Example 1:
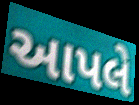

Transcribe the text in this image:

આપલે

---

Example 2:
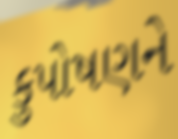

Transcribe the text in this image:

કુપોષણને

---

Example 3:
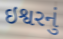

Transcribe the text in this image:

ઇશ્વરનું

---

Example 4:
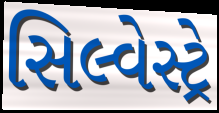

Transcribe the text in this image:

સિલ્વેસ્ટ્રે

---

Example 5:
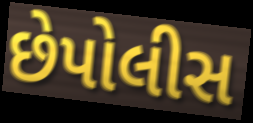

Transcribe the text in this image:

છેપોલીસ